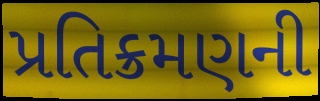
પ્રતિક્રમણની